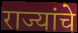
राज्यांचे